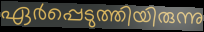
ഏർപ്പെടുത്തിയിരുന്നു